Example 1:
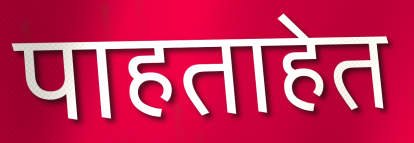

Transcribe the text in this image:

पाहताहेत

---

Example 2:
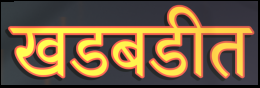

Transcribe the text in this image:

खडबडीत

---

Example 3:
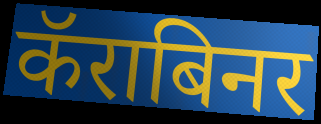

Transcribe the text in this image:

कॅराबिनर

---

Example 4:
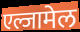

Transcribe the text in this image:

एल्जामेल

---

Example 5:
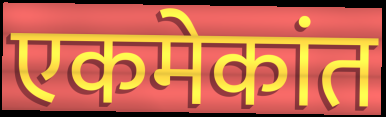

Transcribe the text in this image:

एकमेकांत